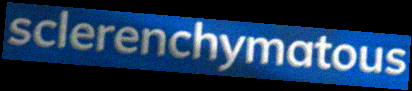
sclerenchymatous